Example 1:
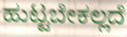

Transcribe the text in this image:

ಹುಟ್ಟಬೇಕಲ್ಲದೆ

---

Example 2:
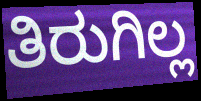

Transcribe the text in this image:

ತಿರುಗಿಲ್ಲ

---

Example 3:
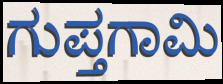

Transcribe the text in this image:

ಗುಪ್ತಗಾಮಿ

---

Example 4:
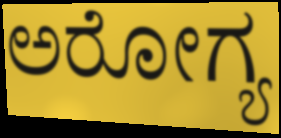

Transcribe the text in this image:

ಅರೋಗ್ಯ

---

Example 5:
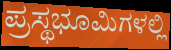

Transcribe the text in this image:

ಪ್ರಸ್ಥಭೂಮಿಗಳಲ್ಲಿ